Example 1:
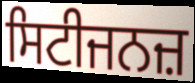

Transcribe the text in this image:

ਸਿਟੀਜਨਜ਼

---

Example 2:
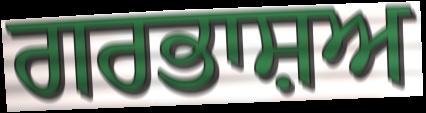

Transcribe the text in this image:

ਗਰਭਾਸ਼ਅ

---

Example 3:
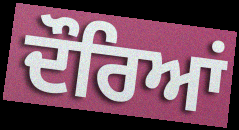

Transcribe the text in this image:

ਦੌਰਿਆਂ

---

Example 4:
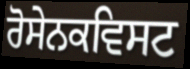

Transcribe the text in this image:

ਰੋਸੇਨਕਵਿਸਟ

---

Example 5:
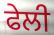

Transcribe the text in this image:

ਫੇਲੀ